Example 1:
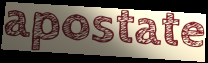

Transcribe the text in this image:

apostate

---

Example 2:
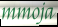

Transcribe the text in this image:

mmoja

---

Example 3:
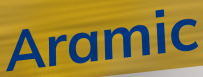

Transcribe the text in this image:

Aramic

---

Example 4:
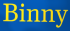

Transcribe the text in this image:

Binny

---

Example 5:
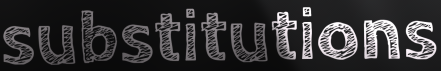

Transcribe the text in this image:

substitutions